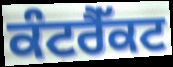
ਕੰਟਰੈੱਕਟ